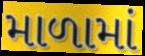
માળામાં